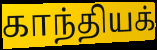
காந்தியக்